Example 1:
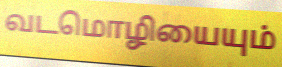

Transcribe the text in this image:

வடமொழியையும்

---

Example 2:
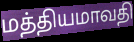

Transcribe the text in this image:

மத்தியமாவதி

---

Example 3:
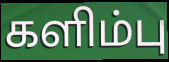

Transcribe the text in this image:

களிம்பு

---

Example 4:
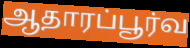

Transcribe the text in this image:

ஆதாரப்பூர்வ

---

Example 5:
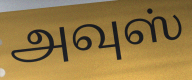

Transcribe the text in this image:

அவுஸ்